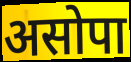
असोपा